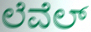
ಲೆವೆಲ್